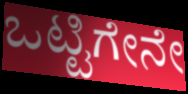
ಒಟ್ಟಿಗೇನೇ